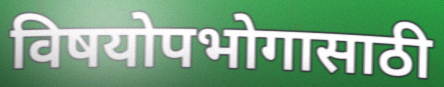
विषयोपभोगासाठी